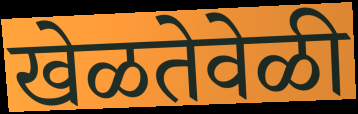
खेळतेवेळी